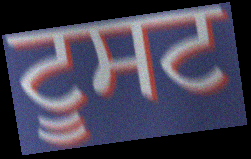
ਟੂਸਟ